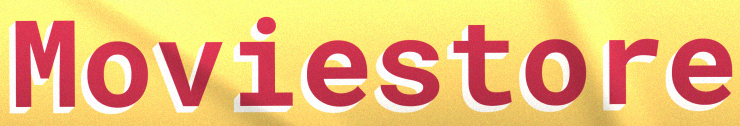
Moviestore